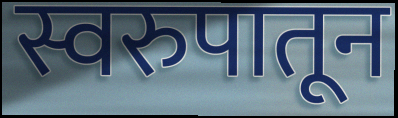
स्वरुपातून